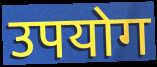
उपयोग